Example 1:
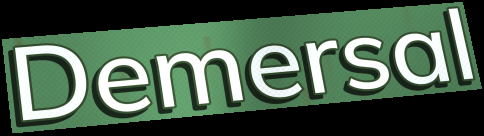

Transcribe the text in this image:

Demersal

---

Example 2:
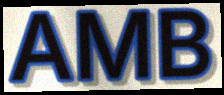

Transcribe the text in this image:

AMB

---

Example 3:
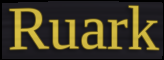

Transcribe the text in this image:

Ruark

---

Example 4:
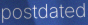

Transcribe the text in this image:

postdated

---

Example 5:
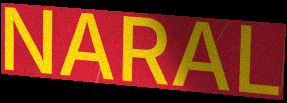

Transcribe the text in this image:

NARAL